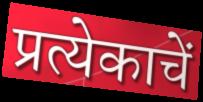
प्रत्येकाचें